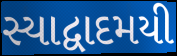
સ્યાદ્વાદમયી